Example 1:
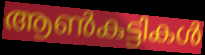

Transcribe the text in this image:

ആൺകുട്ടികൾ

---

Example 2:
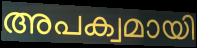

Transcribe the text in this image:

അപക്വമായി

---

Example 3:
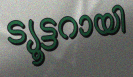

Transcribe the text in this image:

ട്യൂട്ടറായി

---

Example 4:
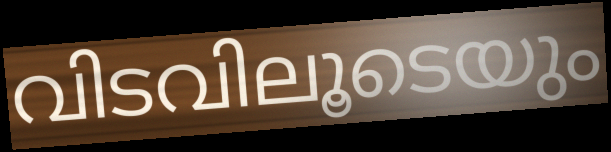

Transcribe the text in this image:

വിടവിലൂടെയും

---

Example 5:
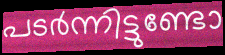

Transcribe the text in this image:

പടർന്നിട്ടുണ്ടോ